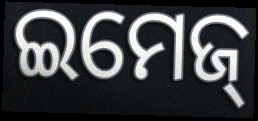
ଇମେଜ୍